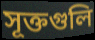
সূক্তগুলি